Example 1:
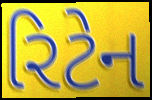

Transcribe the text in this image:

રિટેન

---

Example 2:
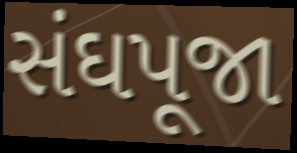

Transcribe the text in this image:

સંઘપૂજા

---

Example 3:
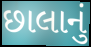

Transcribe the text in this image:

છાલાનું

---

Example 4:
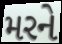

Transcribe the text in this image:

મરને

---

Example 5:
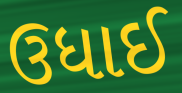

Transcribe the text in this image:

ઉધાઈ